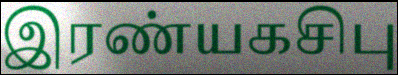
இரண்யகசிபு